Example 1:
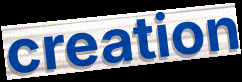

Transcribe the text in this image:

creation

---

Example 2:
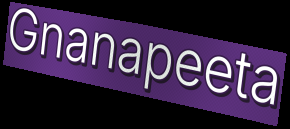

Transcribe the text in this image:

Gnanapeeta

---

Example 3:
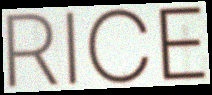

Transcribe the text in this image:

RICE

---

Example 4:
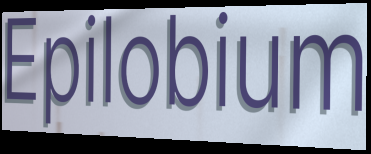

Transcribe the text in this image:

Epilobium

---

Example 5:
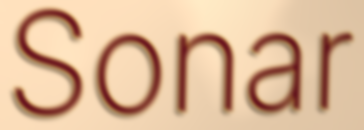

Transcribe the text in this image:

Sonar